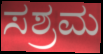
ಸಶ್ರಮ